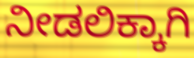
ನೀಡಲಿಕ್ಕಾಗಿ